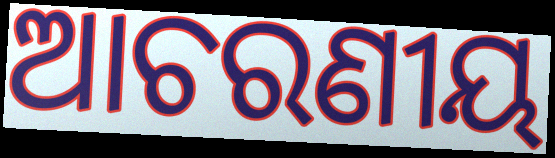
ଆଚରଣୀୟ